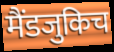
मैंडजुकिच